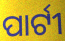
ପାର୍ଟୀ